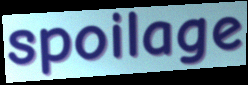
spoilage